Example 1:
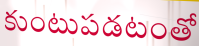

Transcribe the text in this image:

కుంటుపడటంతో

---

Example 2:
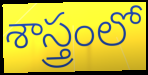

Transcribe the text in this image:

శాస్త్రంలో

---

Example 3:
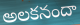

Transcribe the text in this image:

అలకనందా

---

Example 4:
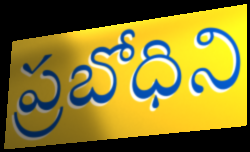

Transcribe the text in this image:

ప్రబోధిని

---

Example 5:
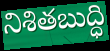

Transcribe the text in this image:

నిశితబుద్ధి